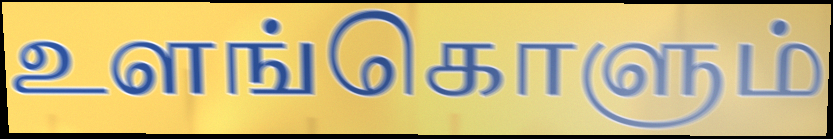
உளங்கொளும்